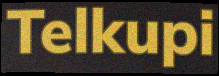
Telkupi